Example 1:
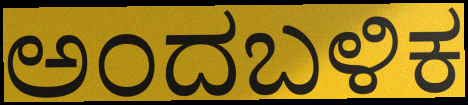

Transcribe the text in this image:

ಅಂದಬಳಿಕ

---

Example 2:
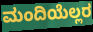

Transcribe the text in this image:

ಮಂದಿಯೆಲ್ಲರ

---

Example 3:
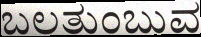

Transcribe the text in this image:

ಬಲತುಂಬುವ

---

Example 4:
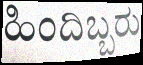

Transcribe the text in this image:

ಹಿಂದಿಬ್ಬರು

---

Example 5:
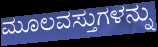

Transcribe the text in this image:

ಮೂಲವಸ್ತುಗಳನ್ನು